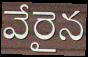
వేరైన